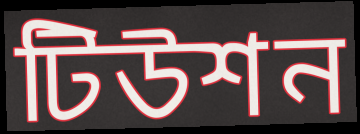
টিউশন